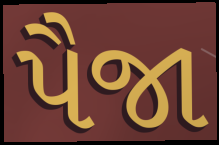
પૈજા